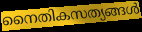
നൈതികസത്യങ്ങൾ